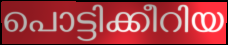
പൊട്ടിക്കീറിയ